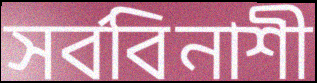
সর্ববিনাশী